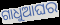
ଗାଧୁଆଘର